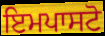
ਇਮਪਾਸਟੋ